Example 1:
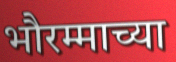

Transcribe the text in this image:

भौरम्माच्या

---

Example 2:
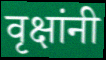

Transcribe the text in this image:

वृक्षांनी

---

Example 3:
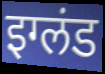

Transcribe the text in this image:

इग्लंड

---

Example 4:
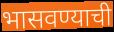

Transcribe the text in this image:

भासवण्याची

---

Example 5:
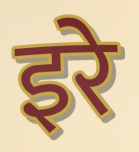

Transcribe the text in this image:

इरे